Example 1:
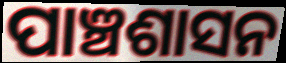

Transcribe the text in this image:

ପାଞ୍ଚଶାସନ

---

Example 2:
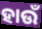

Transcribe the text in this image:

ହାଉଁ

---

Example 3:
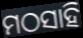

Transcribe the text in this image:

ମଠସାହି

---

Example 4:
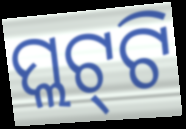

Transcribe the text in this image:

ପ୍ଲଟ୍‌ଟି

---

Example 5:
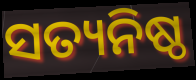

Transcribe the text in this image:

ସତ୍ୟନିଷ୍ଠ